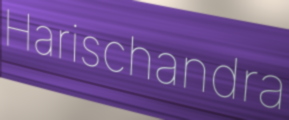
Harischandra